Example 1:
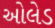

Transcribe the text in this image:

ઓલેડ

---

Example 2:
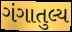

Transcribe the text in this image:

ગંગાતુલ્ય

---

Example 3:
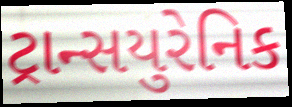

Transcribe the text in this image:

ટ્રાન્સયુરેનિક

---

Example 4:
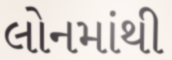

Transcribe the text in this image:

લોનમાંથી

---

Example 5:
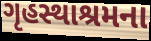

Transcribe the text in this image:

ગૃહસ્થાશ્રમના